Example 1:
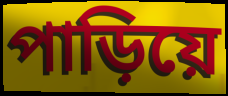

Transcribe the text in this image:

পাড়িয়ে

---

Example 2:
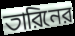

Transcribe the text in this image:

তারিনের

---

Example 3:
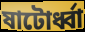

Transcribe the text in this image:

ষাটোর্ধ্বা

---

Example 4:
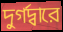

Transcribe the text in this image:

দুর্গদ্বারে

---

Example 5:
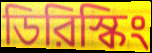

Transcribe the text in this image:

ডিরিস্কিং